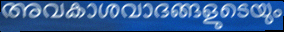
അവകാശവാദങ്ങളുടെയും